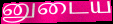
னுடைய